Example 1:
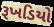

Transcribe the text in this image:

રૂખડિયો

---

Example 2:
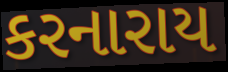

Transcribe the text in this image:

કરનારાય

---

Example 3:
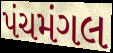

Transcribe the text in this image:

પંચમંગલ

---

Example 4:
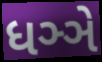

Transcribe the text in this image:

ધઞ્ઞે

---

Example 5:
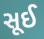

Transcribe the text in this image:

સૂઈ